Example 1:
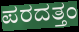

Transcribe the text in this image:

ಪರದತ್ತಂ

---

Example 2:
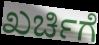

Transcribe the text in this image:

ಖರ್ಚಿಗೆ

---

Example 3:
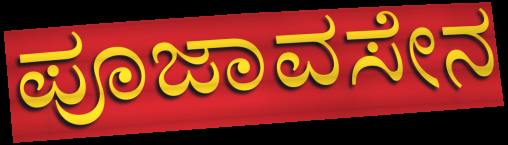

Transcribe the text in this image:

ಪೂಜಾವಸೇನ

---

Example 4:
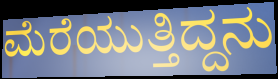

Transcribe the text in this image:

ಮೆರೆಯುತ್ತಿದ್ದನು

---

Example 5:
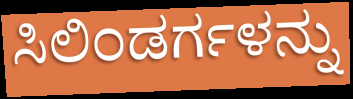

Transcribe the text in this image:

ಸಿಲಿಂಡರ್ಗಳನ್ನು